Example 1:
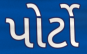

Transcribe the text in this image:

પોર્ટો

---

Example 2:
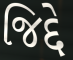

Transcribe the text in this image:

જિદ્દે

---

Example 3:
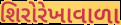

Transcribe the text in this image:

શિરોરેખાવાળા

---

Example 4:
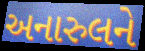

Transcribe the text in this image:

અનારુલને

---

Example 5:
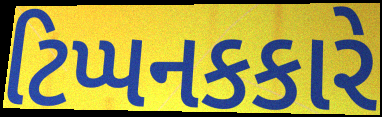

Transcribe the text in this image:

ટિપ્પનકકારે